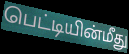
பெட்டியின்மீது